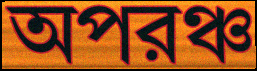
অপরঞ্চ